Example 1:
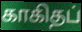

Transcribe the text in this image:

காகிதப்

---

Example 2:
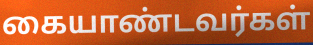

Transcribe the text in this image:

கையாண்டவர்கள்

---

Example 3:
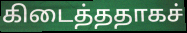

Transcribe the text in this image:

கிடைத்ததாகச்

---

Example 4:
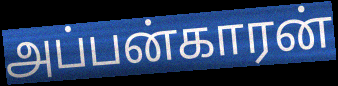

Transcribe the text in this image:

அப்பன்காரன்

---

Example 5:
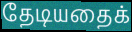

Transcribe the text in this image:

தேடியதைக்